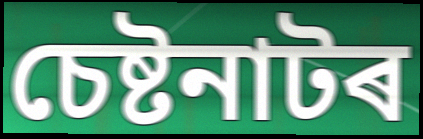
চেষ্টনাটৰ